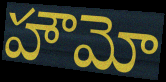
హౌమో